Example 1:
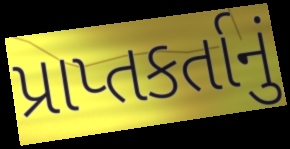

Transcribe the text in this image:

પ્રાપ્તકર્તાનું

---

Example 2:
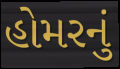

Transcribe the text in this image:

હોમરનું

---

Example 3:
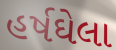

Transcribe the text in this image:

હર્ષઘેલા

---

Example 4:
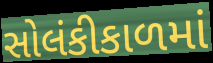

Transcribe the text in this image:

સોલંકીકાળમાં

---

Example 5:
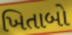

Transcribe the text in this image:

ખિતાબો